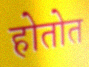
होतोत